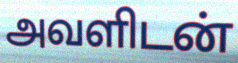
அவளிடன்